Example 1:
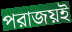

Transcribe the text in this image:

পরাজয়ই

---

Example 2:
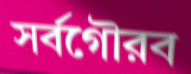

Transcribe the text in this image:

সর্বগৌরব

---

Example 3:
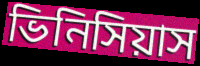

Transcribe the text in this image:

ভিনিসিয়াস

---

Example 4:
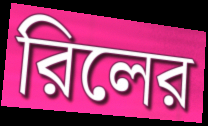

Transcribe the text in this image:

রিলের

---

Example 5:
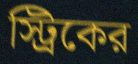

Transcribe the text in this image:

স্ট্রিকের